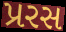
પ્રરસ